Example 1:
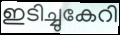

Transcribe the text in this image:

ഇടിച്ചുകേറി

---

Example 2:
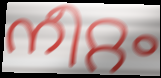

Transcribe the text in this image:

നീറ്റം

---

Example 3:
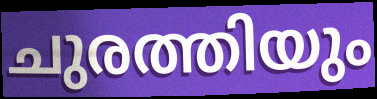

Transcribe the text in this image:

ചുരത്തിയും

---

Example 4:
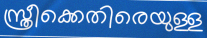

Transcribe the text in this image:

സ്ത്രീക്കെതിരെയുള്ള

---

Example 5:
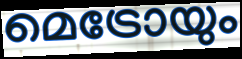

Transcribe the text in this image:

മെട്രോയും